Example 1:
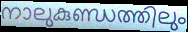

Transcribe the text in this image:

നാലുകുണ്ഡത്തിലും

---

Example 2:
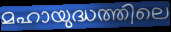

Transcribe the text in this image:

മഹായുദ്ധത്തിലെ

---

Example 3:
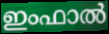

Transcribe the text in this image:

ഇംഫാൽ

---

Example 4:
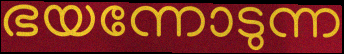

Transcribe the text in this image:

ഭയന്നോടുന്ന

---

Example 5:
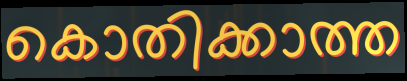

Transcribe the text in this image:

കൊതിക്കാത്ത